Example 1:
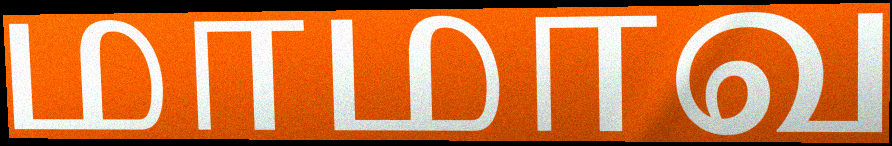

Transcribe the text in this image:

மாமாவ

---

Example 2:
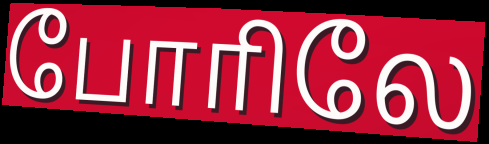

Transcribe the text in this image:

போரிலே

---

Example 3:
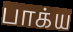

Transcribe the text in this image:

பாக்ய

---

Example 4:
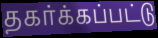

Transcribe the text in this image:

தகர்க்கப்பட்டு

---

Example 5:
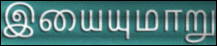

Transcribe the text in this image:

இயையுமாறு